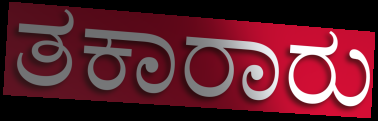
ತಕಾರಾರು